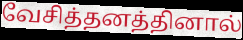
வேசித்தனத்தினால்